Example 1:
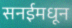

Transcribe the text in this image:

सनईमधून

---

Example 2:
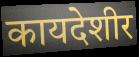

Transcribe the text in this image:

कायदेशीर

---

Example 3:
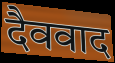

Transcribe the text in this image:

दैववाद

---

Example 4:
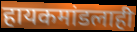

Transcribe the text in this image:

हायकमांडलाही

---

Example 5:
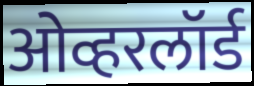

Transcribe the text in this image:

ओव्हरलॉर्ड